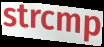
strcmp